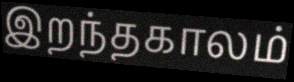
இறந்தகாலம்